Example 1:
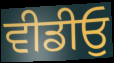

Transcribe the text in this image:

ਵੀਡੀਓੁ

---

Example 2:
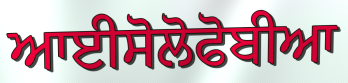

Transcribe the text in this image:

ਆਈਸੋਲੋਫੋਬੀਆ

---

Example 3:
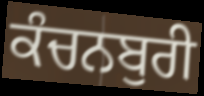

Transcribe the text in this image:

ਕੰਚਨਬੁਰੀ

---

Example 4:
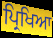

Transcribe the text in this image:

ਪ੍ਰਿਖਿਆ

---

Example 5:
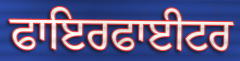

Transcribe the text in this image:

ਫਾਇਰਫਾਈਟਰ